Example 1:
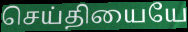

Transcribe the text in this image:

செய்தியையே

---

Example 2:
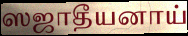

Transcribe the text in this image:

ஸஜாதீயனாய்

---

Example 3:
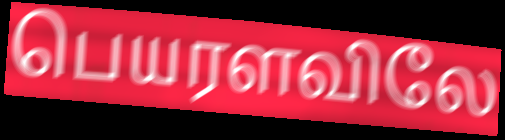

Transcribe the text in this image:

பெயரளவிலே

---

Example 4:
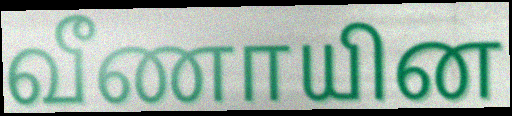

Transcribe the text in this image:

வீணாயின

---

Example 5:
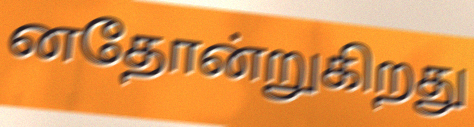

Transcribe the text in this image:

னதோன்றுகிறது